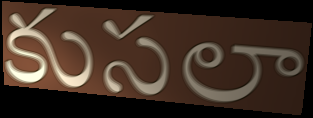
కుసలా